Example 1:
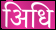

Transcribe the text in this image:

अिधि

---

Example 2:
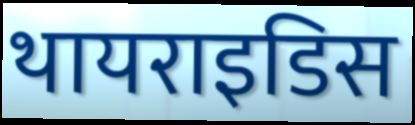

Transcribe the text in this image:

थायराइडिस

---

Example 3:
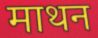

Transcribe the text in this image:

माथन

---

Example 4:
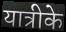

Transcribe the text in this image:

यात्रीके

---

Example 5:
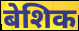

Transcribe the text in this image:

बेशिक